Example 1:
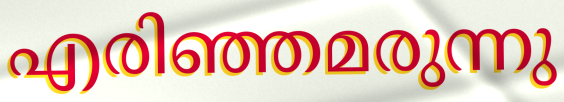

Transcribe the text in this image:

എരിഞ്ഞമരുന്നു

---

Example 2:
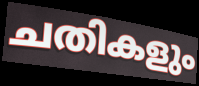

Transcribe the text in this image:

ചതികളും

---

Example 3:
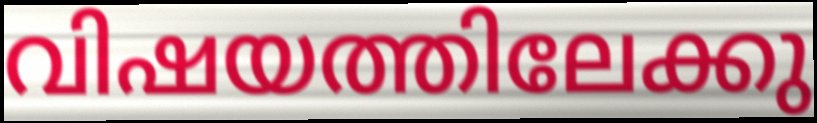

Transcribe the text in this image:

വിഷയത്തിലേക്കു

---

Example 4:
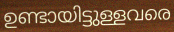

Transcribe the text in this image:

ഉണ്ടായിട്ടുള്ളവരെ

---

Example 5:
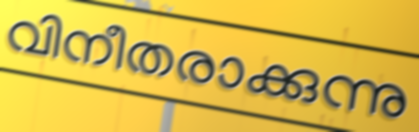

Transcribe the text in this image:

വിനീതരാക്കുന്നു